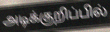
அடிக்குறிப்பில்